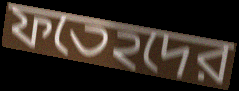
ফতেহদের